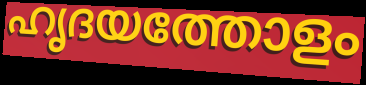
ഹൃദയത്തോളം